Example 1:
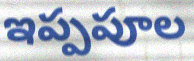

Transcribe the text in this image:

ఇప్పపూల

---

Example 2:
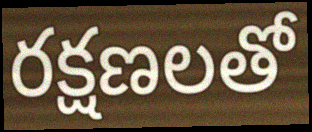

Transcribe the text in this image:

రక్షణలతో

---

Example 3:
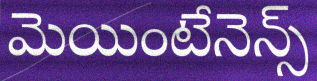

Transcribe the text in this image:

మెయింటేనెన్స్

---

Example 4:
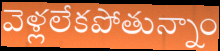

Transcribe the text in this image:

వెళ్లలేకపోతున్నాం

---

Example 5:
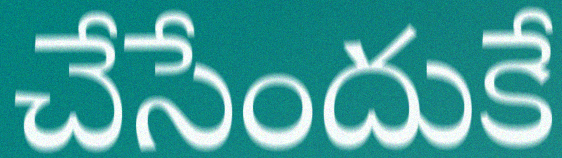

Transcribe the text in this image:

చేసేందుకే